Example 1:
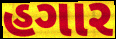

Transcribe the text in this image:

હગાર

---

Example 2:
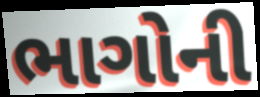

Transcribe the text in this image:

ભાગોની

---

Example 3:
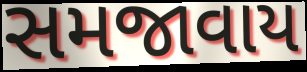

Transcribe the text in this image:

સમજાવાય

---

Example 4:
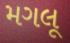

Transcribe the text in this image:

મગલૂ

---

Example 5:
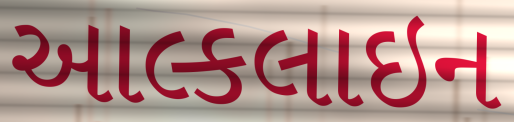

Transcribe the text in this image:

આલ્કલાઇન